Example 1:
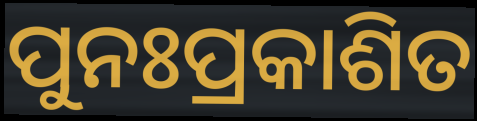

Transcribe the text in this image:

ପୁନଃପ୍ରକାଶିତ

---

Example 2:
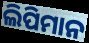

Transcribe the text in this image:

ଲିପିମାନ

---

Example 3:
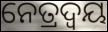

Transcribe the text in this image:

ନେତ୍ରଦ୍ୱୟ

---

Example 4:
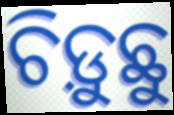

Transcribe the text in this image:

ଚିଡ଼ୁଛୁ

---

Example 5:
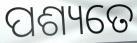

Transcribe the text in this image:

ପଶ୍ୟତେ